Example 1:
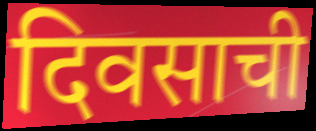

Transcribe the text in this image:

दिवसाची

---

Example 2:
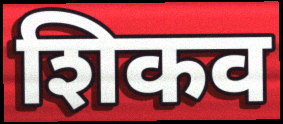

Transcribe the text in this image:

शिकव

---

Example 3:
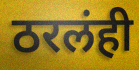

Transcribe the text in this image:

ठरलंही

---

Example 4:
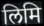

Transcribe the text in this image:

लिमि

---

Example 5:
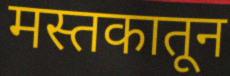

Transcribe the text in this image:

मस्तकातून